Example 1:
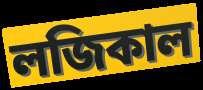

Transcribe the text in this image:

লজিকাল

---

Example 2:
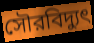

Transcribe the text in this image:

সৌরবিদ্যুৎ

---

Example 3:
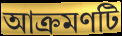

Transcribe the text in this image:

আক্রমণটি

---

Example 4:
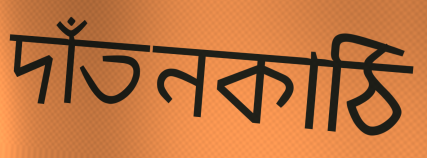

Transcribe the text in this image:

দাঁতনকাঠি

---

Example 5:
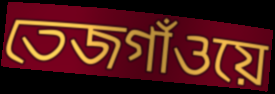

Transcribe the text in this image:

তেজগাঁওয়ে